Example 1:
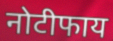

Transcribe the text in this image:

नोटीफाय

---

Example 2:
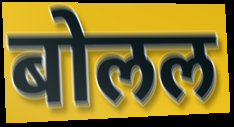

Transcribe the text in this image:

बोलल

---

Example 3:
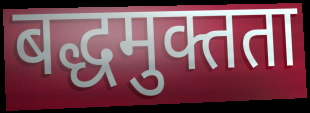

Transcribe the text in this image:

बद्धमुक्तता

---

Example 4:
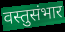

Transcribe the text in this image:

वस्तुसंभार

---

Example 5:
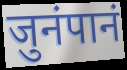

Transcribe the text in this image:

जुनंपानं